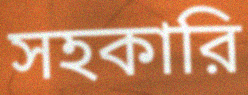
সহকারি